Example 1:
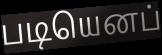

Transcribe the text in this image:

படியெனப்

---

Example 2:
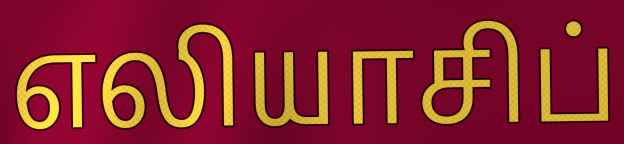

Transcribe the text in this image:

எலியாசிப்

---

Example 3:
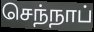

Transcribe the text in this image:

செந்நாப்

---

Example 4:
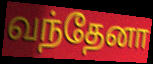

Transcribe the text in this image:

வந்தேனா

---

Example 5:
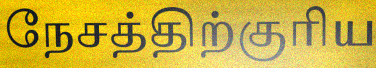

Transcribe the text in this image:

நேசத்திற்குரிய